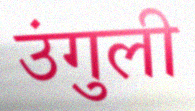
उंगुली